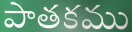
పాతకము